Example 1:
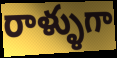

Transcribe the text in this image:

రాళ్ళుగా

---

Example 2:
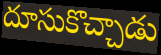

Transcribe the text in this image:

దూసుకొచ్చాడు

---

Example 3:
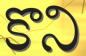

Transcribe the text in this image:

కొని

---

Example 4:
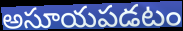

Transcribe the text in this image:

అసూయపడటం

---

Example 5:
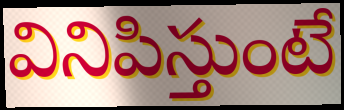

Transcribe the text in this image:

వినిపిస్తుంటే